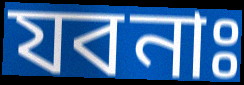
যবনাঃ